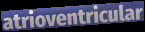
atrioventricular